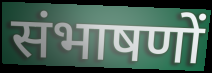
संभाषणों